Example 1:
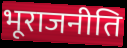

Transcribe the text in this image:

भूराजनीति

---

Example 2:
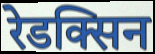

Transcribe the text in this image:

रेडक्सिन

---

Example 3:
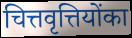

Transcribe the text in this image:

चित्तवृत्तियोंका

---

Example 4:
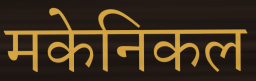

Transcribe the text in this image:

मकेनिकल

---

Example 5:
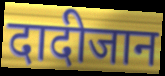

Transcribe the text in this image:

दादीजान